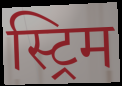
स्ट्रिम